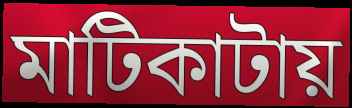
মাটিকাটায়